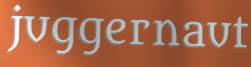
juggernaut